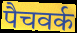
पैचवर्क